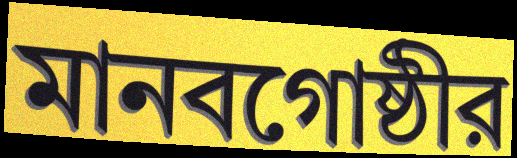
মানবগোষ্ঠীর